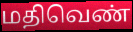
மதிவெண்